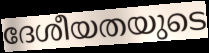
ദേശീയതയുടെ